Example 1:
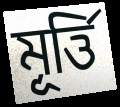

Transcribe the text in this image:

মূর্ত্তি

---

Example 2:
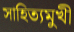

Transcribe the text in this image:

সাহিত্যমুখী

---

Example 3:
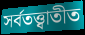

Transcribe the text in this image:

সর্বতত্ত্বাতীত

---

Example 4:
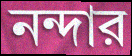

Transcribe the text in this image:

নন্দার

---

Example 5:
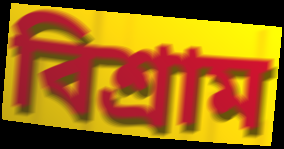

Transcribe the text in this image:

বিশ্রাম